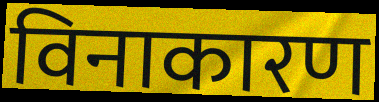
विनाकारण